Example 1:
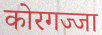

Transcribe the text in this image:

कोरगज्जा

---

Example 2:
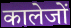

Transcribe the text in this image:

कालेजों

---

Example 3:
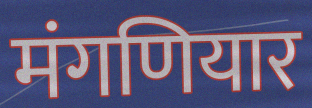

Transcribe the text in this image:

मंगणियार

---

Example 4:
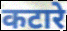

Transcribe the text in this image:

कटारे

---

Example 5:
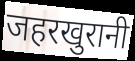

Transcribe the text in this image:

जहरखुरानी